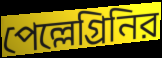
পেল্লেগ্রিনির